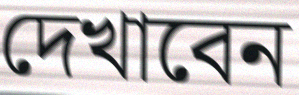
দেখাবেন